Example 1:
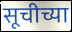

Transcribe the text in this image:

सूचीच्या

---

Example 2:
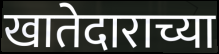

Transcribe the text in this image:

खातेदाराच्या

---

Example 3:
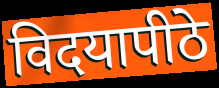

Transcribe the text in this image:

विदयापीठे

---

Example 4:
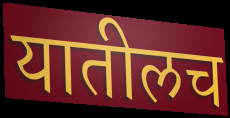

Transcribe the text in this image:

यातीलच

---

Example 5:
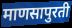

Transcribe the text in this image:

माणसापुरती